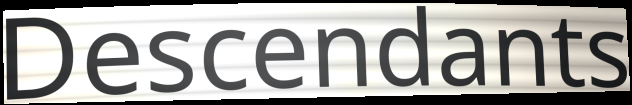
Descendants